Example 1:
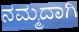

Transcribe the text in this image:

ನಮ್ಮದಾಗಿ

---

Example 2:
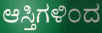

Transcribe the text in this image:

ಆಸ್ತಿಗಳಿಂದ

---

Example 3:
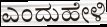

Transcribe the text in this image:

ಎಂದುಹೇಳಿ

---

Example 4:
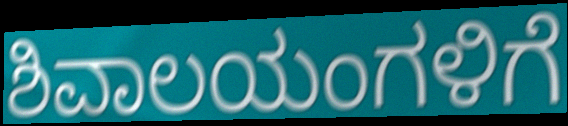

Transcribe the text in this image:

ಶಿವಾಲಯಂಗಳಿಗೆ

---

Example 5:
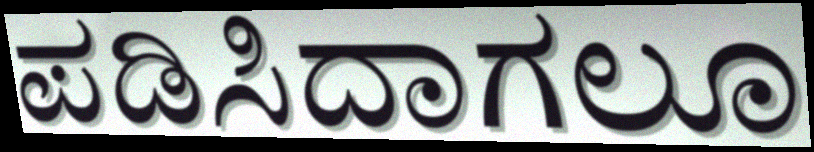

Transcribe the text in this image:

ಪಡಿಸಿದಾಗಲೂ